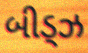
બીડ્ઝ